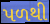
પળથી